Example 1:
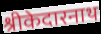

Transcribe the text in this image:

श्रीकेदारनाथ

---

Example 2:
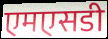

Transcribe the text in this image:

एमएसडी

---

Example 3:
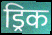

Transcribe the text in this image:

ड्रिक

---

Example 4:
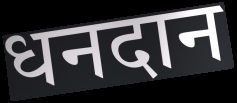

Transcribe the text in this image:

धनदान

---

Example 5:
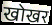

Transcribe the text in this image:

खोखर